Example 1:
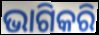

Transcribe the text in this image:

ଭାଗିକରି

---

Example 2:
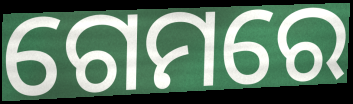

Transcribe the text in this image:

ଗେମରେ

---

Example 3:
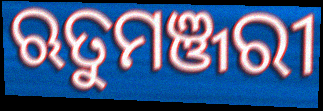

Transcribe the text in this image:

ଋତୁମଞ୍ଜରୀ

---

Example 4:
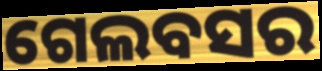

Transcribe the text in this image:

ଗେଲବସର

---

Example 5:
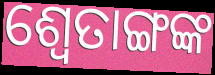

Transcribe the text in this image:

ଶ୍ୱେତାଙ୍ଗଙ୍କ